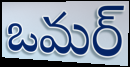
ఒమర్